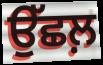
ਉੱਛਲ਼